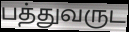
பத்துவருட